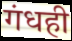
गंधही